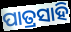
ପାତ୍ରସାହି